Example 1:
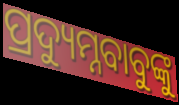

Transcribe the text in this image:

ପ୍ରଦ୍ୟୁମ୍ନବାବୁଙ୍କୁ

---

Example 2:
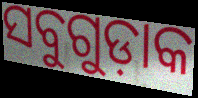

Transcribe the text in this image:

ସବୁଗୁଡ଼ାକ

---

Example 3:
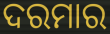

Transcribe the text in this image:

ଦରମାର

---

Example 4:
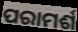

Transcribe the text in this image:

ପରାମର୍ଶ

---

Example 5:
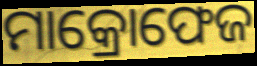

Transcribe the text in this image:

ମାକ୍ରୋଫେଜ